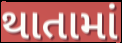
થાતામાં